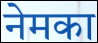
नेमका